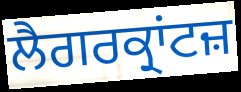
ਲੈਗਰਕ੍ਰਾਂਟਜ਼